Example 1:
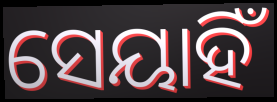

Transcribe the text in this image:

ସେୟାହିଁ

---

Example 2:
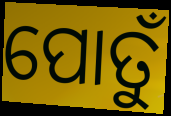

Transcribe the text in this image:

ପୋତୁଁ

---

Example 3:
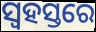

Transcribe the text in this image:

ସ୍ୱହସ୍ତରେ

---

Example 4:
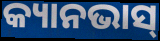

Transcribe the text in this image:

କ୍ୟାନଭାସ୍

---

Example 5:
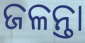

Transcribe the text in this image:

ଜଳନ୍ତା